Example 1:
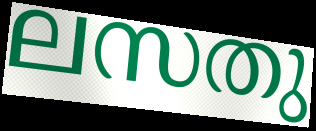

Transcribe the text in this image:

ലസതു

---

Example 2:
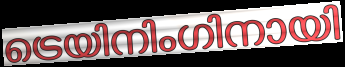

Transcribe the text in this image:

ട്രെയിനിംഗിനായി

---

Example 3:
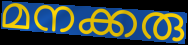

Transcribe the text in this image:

മനക്കരു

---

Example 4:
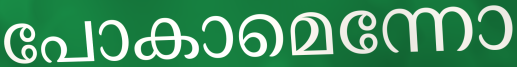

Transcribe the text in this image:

പോകാമെന്നോ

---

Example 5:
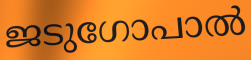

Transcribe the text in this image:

ജടുഗോപാൽ